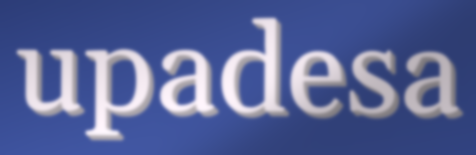
upadesa